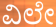
ವಿಲೇ